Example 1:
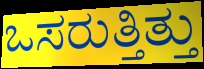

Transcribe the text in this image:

ಒಸರುತ್ತಿತ್ತು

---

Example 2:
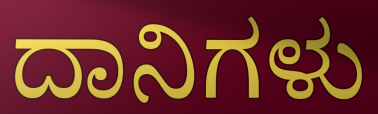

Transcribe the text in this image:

ದಾನಿಗಳು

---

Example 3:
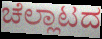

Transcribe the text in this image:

ಚೆಲ್ಲಾಟದ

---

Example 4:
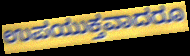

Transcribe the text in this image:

ಉಪಯುಕ್ತವಾದರೂ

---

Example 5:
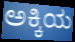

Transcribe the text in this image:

ಅಕ್ಕಿಯ